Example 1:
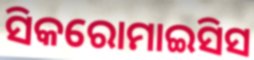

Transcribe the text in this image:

ସିକରୋମାଇସିସ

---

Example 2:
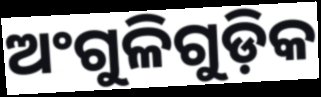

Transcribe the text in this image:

ଅଂଗୁଳିଗୁଡ଼ିକ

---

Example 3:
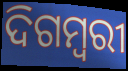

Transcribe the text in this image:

ଦିଗମ୍ୱରୀ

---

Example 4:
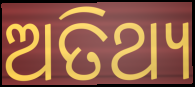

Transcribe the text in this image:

ଅତିଥ୍ୟ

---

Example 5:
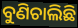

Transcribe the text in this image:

ବୁଣିଚାଲିଛି